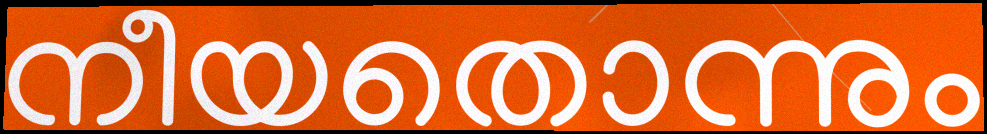
നീയതൊന്നും